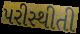
પરીસ્થીતી